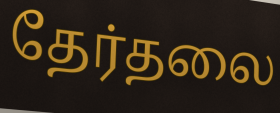
தேர்தலை